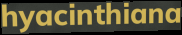
hyacinthiana